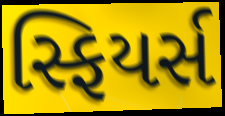
સ્ફિયર્સ